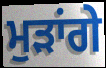
ਮੁੜਾਂਗੇ